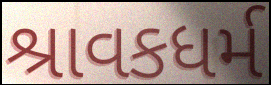
શ્રાવકધર્મ